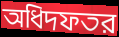
অধিদফতর